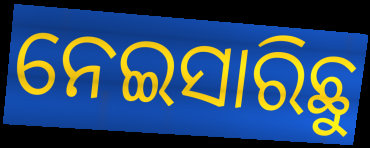
ନେଇସାରିଛୁ